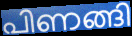
പിണങ്ങി